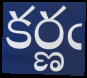
కర్ణఁ